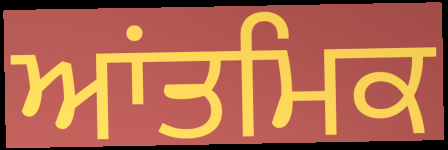
ਆਂਤਮਿਕ